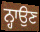
ਨ੍ਹਾਉਣ